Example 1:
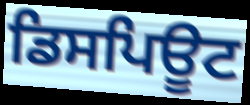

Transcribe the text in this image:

ਡਿਸਪਿਊਟ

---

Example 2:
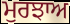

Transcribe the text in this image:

ਮੁਰਝਾਅ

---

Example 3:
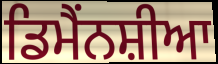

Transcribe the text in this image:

ਡਿਮੈਂਨਸ਼ੀਆ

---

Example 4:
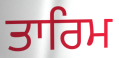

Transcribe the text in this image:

ਤਾਰਿਮ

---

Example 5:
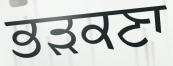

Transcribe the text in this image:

ਭੜਕਣਾ